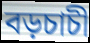
বড়চাচী